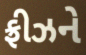
ફ્રીઝને